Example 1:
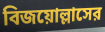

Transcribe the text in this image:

বিজয়োল্লাসের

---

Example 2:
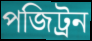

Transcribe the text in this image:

পজিট্রন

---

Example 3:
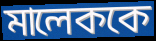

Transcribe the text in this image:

মালেককে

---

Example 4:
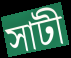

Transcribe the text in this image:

সাটী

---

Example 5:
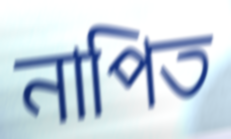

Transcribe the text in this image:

নাপিত